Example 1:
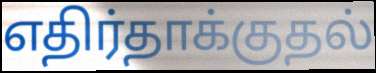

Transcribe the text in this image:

எதிர்தாக்குதல்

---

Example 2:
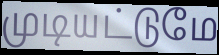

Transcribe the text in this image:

முடியட்டுமே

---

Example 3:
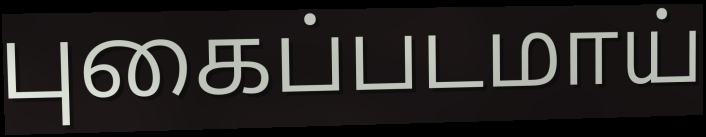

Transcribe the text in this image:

புகைப்படமாய்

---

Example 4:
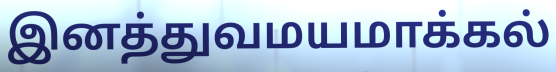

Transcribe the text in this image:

இனத்துவமயமாக்கல்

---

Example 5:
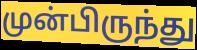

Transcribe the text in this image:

முன்பிருந்து